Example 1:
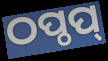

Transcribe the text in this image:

ଠପ୍ଠପ୍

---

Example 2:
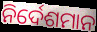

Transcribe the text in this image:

ନିର୍ଦେଶମାନ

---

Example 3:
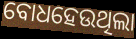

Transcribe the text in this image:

ବୋଧହେଉଥିଲା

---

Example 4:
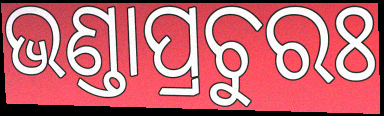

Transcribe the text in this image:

ଭଣ୍ଡାପ୍ରଚୁରଃ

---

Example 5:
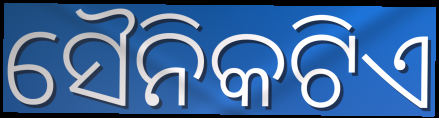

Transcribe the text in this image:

ସୈନିକଟିଏ